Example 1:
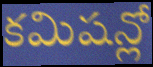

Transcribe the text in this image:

కమిషన్లో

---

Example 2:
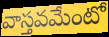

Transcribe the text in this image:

వాస్తవమేంటో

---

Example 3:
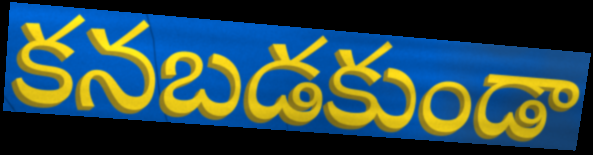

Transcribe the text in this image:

కనబడకుండా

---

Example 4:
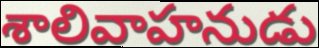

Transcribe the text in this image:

శాలివాహనుడు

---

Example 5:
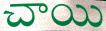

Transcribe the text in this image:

చాయి